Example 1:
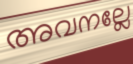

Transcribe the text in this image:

അവനല്ലേ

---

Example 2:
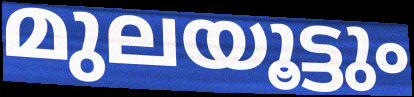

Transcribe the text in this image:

മുലയൂട്ടും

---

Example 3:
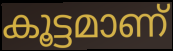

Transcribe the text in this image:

കൂട്ടമാണ്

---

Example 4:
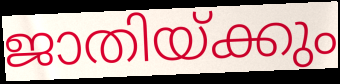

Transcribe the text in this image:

ജാതിയ്ക്കും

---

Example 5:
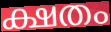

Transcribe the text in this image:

ക്ഷതം